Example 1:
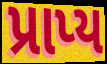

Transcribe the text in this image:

પ્રાપ્ય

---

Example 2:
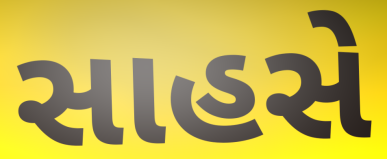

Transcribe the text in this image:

સાહસે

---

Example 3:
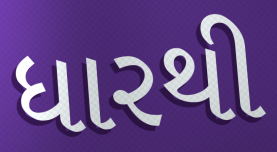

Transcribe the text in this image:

ધારથી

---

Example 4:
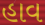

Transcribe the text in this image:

હાવ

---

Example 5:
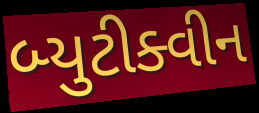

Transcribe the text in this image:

બ્યુટીક્વીન